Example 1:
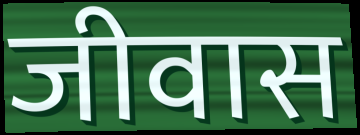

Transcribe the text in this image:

जीवास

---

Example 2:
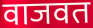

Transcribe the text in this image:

वाजवत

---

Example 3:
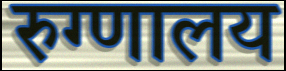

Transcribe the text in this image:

रुग्णालय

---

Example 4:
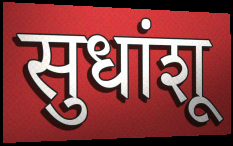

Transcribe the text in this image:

सुधांशू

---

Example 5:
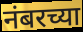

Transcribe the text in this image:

नंबरच्या